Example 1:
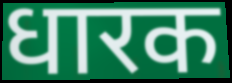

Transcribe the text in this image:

धारक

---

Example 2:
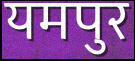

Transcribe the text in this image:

यमपुर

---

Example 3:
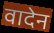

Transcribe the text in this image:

वादेन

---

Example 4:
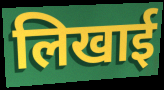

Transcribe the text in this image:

लिखाई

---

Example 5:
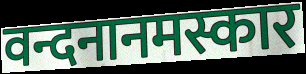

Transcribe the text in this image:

वन्दनानमस्कार